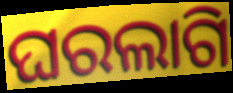
ଘରଲାଗି